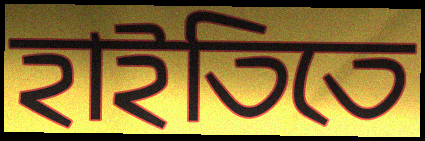
হাইতিতে